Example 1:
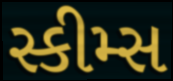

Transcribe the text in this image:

સ્કીમ્સ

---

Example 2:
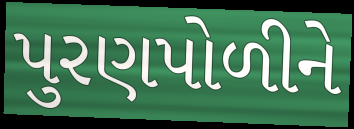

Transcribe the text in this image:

પુરણપોળીને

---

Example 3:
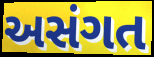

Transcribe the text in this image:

અસંગત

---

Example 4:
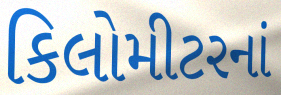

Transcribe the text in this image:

કિલોમીટરનાં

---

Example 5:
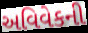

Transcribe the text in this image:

અવિવેકની